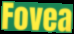
Fovea